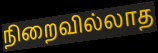
நிறைவில்லாத